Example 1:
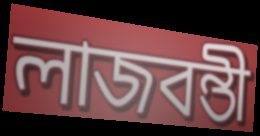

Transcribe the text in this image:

লাজবন্তী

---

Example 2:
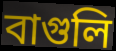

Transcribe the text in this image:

বাগুলি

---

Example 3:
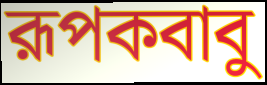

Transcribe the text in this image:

রূপকবাবু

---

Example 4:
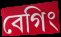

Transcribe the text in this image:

বেগিং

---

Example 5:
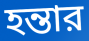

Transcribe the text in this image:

হন্তার